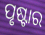
ପୃଷ୍ଟାର